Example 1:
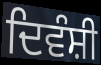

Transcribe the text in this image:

ਦਿਵੰਸ਼ੀ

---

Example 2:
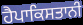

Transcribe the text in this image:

ਹੈਪਾਕਿਸਤਾਨੀ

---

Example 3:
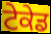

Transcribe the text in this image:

ਟੇਕੇਡ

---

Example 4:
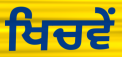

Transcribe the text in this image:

ਖਿਚਵੇਂ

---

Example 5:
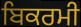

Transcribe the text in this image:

ਬਿਕਰਮੀ